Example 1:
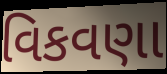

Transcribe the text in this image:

વિકવણા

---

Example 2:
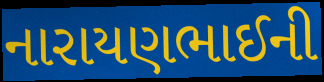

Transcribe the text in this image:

નારાયણભાઈની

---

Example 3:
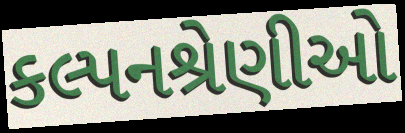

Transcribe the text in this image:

કલ્પનશ્રેણીઓ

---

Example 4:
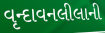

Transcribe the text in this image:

વૃન્દાવનલીલાની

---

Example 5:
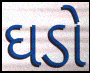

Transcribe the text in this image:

ઘડો